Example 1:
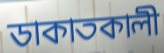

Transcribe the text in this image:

ডাকাতকালী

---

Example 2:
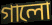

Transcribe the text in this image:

গালো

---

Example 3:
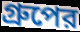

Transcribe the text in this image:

গ্রুপের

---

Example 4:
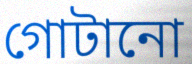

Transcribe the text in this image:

গোটানো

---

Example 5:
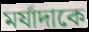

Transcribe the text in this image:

মর্যাদাকে